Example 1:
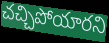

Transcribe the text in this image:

చచ్చిపోయారని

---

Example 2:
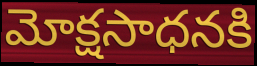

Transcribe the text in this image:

మోక్షసాధనకి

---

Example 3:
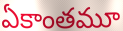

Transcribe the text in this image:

ఏకాంతమూ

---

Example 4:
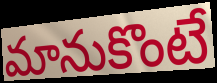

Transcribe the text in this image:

మానుకొంటే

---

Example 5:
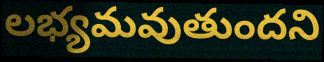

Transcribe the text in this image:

లభ్యమవుతుందని